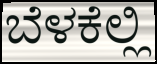
ಬೆಳಕೆಲ್ಲಿ